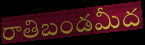
రాతిబండమీద